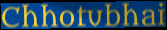
Chhotubhai